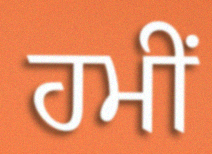
ਹਮੀਂ